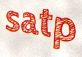
satp